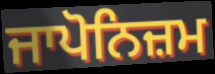
ਜਾਪੋਨਿਜ਼ਮ